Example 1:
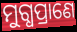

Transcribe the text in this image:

ମୁଗ୍ଧପ୍ରାଣେ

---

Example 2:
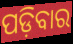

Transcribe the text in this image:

ପଡ଼ିବାର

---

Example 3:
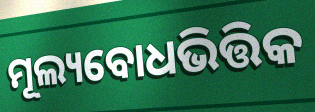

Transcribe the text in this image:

ମୂଲ୍ୟବୋଧଭିତ୍ତିକ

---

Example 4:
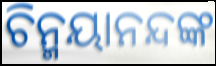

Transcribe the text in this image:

ଚିନ୍ମୟାନନ୍ଦଙ୍କ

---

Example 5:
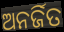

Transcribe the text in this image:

ଅନର୍ଜିତ